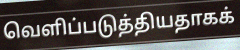
வெளிப்படுத்தியதாகக்